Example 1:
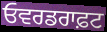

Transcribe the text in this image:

ਓਵਰਡਰਾਫ਼ਟ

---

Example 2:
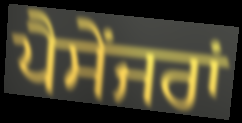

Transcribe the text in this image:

ਪੈਸੇਂਜਰਾਂ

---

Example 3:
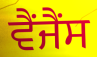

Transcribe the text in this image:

ਵੈਂਜੈਂਸ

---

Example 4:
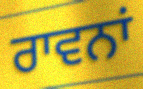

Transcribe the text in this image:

ਰਾਵਨਾਂ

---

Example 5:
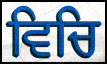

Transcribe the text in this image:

ਵਿਚਿ